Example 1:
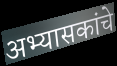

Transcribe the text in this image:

अभ्यासकांचे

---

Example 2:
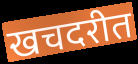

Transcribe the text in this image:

खचदरीत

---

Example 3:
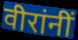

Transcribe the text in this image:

वीरांनीं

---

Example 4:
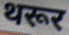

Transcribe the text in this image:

थरूर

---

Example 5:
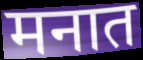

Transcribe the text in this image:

मनात